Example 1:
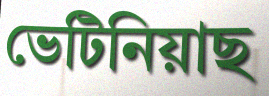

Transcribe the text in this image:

ভেটিনিয়াছ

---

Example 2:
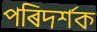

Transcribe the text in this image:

পৰিদৰ্শক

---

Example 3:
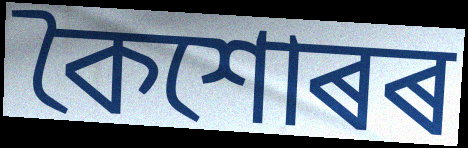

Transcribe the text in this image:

কৈশোৰৰ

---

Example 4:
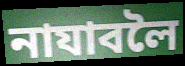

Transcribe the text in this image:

নাযাবলৈ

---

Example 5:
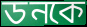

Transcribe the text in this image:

ডনকে